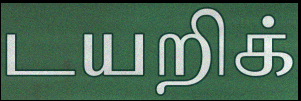
டயறிக்